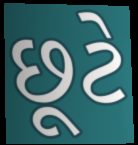
છૂટે